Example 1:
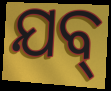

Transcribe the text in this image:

ଯବ୍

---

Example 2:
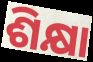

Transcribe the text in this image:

ଶିକ୍ଷା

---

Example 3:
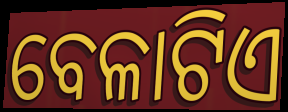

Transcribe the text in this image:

ବେଳାଟିଏ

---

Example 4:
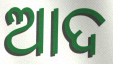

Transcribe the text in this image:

ଆଦ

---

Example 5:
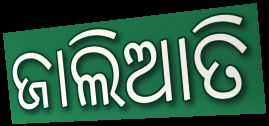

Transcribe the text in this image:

ଜାଲିଆତି